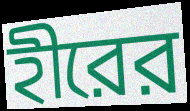
হীরের